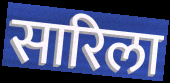
सारिला